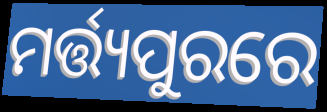
ମର୍ତ୍ତ୍ୟପୁରରେ